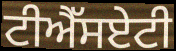
ਟੀਐੱਸਏਟੀ